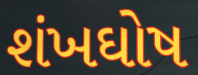
શંખઘોષ